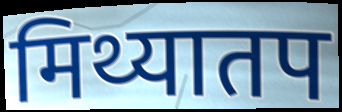
मिथ्यातप